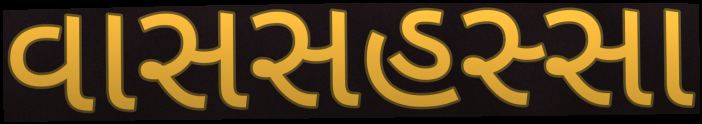
વાસસહસ્સા